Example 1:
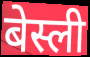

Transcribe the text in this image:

बेस्ली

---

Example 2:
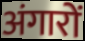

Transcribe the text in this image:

अंगारों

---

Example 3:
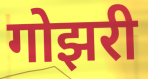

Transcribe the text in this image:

गोझरी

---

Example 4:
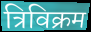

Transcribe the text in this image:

त्रिविक्रम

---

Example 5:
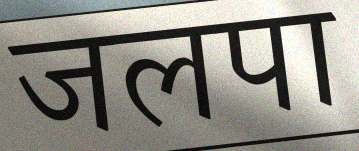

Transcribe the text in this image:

जलपा